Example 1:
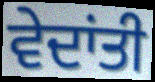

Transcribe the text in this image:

ਵੇਦਾਂਤੀ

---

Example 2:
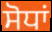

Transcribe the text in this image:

ਸੋਧਾਂ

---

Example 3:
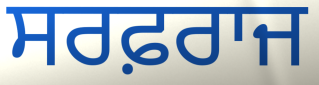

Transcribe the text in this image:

ਸਰਫ਼ਰਾਜ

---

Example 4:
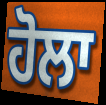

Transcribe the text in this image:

ਹੋਲਾ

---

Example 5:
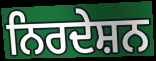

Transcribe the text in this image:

ਨਿਰਦੇਸ਼ਨ